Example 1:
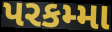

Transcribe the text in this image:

પરકમ્મા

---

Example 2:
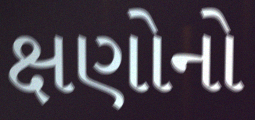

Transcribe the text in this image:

ક્ષણોનો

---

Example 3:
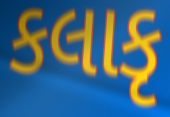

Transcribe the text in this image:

કલાકૃ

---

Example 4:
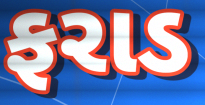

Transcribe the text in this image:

ફરાડ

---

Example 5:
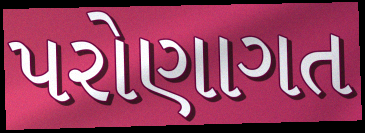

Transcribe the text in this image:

પરોણાગત